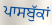
ਪਾਸਬੁੱਕਾਂ